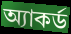
অ্যাকর্ড